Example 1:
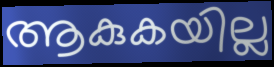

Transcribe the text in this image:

ആകുകയില്ല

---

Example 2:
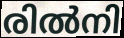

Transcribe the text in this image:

രിൽനി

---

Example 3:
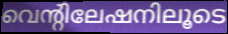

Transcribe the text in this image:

വെന്റിലേഷനിലൂടെ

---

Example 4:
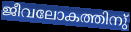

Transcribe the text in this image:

ജീവലോകത്തിനു്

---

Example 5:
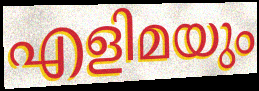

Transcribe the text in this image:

എളിമയും